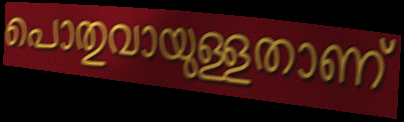
പൊതുവായുള്ളതാണ്